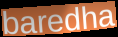
baredha